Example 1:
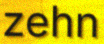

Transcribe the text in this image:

zehn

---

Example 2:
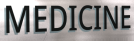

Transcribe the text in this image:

MEDICINE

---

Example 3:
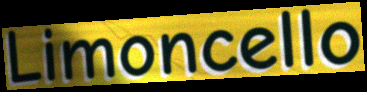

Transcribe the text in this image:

Limoncello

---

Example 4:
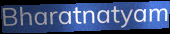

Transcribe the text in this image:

Bharatnatyam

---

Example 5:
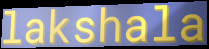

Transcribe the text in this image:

lakshala